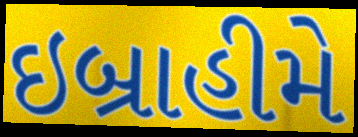
ઇબ્રાહીમે